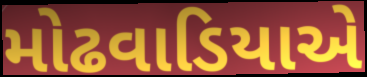
મોઢવાડિયાએ